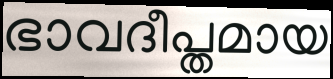
ഭാവദീപ്തമായ